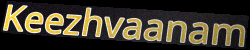
Keezhvaanam